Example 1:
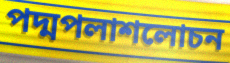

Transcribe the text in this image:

পদ্মপলাশলোচন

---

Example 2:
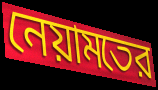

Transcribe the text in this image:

নেয়ামতের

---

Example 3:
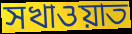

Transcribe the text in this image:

সখাওয়াত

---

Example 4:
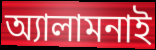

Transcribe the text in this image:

অ্যালামনাই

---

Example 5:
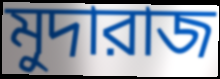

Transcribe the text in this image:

মুদারাজ